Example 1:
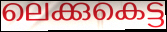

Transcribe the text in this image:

ലെക്കുകെട്ട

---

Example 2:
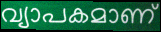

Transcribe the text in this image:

വ്യാപകമാണ്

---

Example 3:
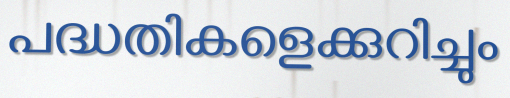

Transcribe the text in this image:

പദ്ധതികളെക്കുറിച്ചും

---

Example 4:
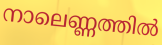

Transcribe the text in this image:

നാലെണ്ണത്തിൽ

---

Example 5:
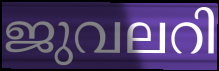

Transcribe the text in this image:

ജുവലറി